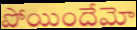
పోయిందేమో